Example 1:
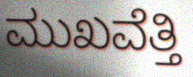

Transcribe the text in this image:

ಮುಖವೆತ್ತಿ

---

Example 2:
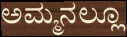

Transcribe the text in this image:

ಅಮ್ಮನಲ್ಲೂ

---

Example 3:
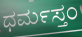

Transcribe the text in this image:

ಧರ್ಮಸ್ತಂ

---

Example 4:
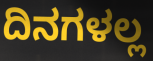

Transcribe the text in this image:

ದಿನಗಳಲ್ಲ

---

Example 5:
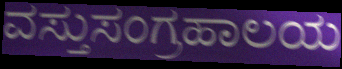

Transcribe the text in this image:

ವಸ್ತುಸಂಗ್ರಹಾಲಯ